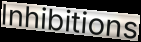
Inhibitions